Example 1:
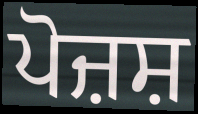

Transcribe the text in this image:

ਪੋਜ਼ਸ਼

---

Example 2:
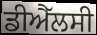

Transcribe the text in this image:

ਡੀਐੱਲਸੀ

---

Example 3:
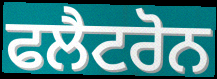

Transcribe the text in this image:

ਫਲੈਟਰੋਨ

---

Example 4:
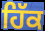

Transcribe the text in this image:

ਹਿੱਕ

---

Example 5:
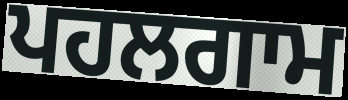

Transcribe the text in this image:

ਪਹਲਗਾਮ